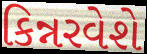
કિન્નરવેશે